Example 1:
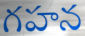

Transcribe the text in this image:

గహన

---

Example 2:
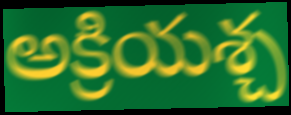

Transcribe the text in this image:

అక్రియశ్చ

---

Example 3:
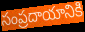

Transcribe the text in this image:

సంప్రదాయానికి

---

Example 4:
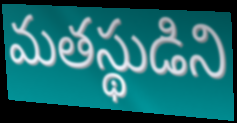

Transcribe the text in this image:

మతస్థుడిని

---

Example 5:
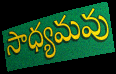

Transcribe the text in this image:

సాధ్యమవు